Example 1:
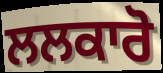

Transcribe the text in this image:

ਲਲਕਾਰੋ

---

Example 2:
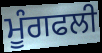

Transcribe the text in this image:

ਮੂੰਗਫਲੀ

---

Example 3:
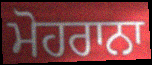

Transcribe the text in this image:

ਮੋਹਰਾਨਾ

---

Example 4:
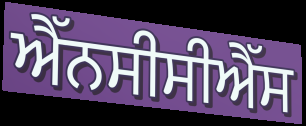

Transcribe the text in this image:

ਐੱਨਸੀਸੀਐੱਸ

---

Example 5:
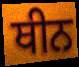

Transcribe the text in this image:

ਥੀਨ